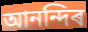
আনন্দিৰ